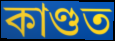
কাণ্ডত